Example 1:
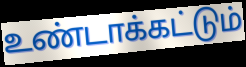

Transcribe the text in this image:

உண்டாக்கட்டும்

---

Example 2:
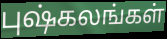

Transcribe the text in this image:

புஷ்கலங்கள்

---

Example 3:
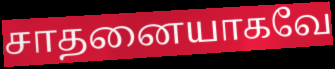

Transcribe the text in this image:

சாதனையாகவே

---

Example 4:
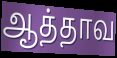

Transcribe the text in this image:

ஆத்தாவ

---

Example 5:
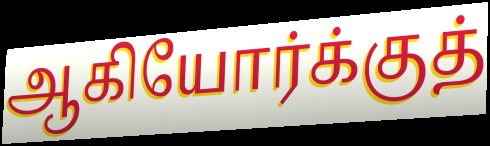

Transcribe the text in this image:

ஆகியோர்க்குத்